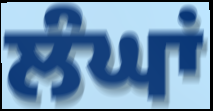
ਲੰਘਾਂ